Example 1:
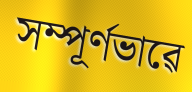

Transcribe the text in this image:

সম্পূৰ্ণভাৱে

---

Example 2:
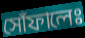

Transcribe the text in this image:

সোঁফালেঃ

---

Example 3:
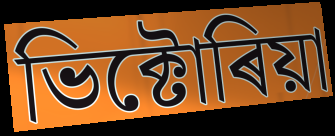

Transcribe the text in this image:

ভিক্টোৰিয়া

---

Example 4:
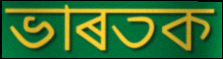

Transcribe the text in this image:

ভাৰতক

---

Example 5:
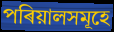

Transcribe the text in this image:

পৰিয়ালসমূহে